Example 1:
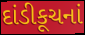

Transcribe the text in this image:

દાંડીકૂચનાં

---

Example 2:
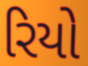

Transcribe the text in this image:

રિયો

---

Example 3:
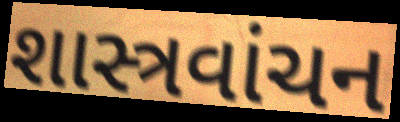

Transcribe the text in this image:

શાસ્ત્રવાંચન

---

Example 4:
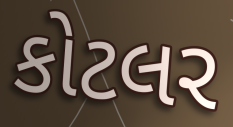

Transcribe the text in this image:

કોટલર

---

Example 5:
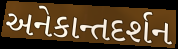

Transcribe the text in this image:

અનેકાન્તદર્શન